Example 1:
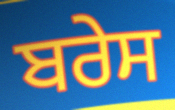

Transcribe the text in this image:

ਬਰੇਸ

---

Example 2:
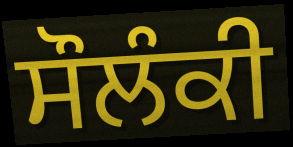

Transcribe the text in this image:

ਸੌਲੰਕੀ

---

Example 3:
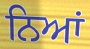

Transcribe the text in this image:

ਨਿਆਂ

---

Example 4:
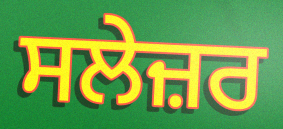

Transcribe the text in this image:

ਸਲੇਜ਼ਰ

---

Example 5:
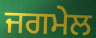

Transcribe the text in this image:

ਜਗਮੇਲ